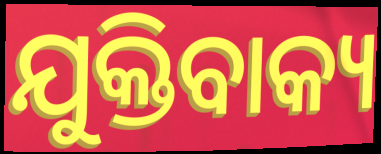
ଯୁକ୍ତିବାକ୍ୟ